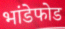
भांडेफोड